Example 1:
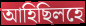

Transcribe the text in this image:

আহিছিলহে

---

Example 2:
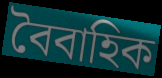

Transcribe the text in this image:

বৈবাহিক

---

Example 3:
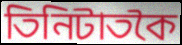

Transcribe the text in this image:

তিনিটাতকৈ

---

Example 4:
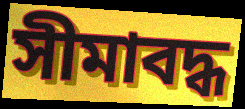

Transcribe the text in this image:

সীমাবদ্ধ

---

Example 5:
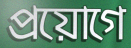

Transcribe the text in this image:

প্ৰয়োগে